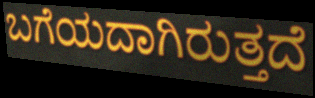
ಬಗೆಯದಾಗಿರುತ್ತದೆ